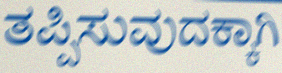
ತಪ್ಪಿಸುವುದಕ್ಕಾಗಿ